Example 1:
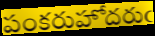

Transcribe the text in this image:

పంకరుహోదరుఁ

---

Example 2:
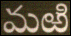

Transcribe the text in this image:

మఱి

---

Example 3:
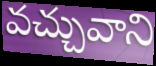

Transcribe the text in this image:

వచ్చువాని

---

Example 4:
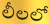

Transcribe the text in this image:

లీలలో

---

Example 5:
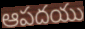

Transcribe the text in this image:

ఆపదయు